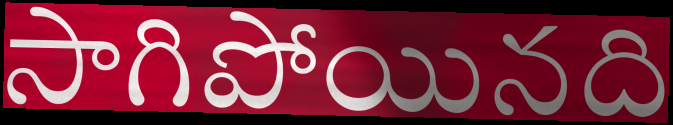
సాగిపోయినది